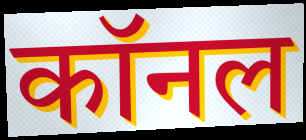
कॉनल